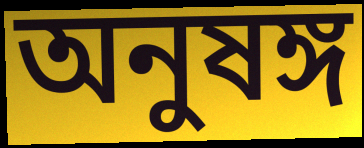
অনুষঙ্গ